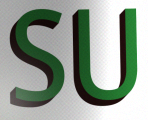
SU